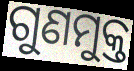
ଗୁଣମୁକ୍ତ